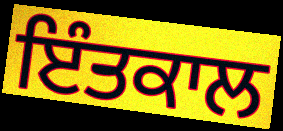
ਇੰਤਕਾਲ